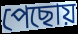
পেছোয়